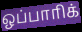
ஒப்பாரிக்